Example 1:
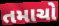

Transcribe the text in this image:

તમાચો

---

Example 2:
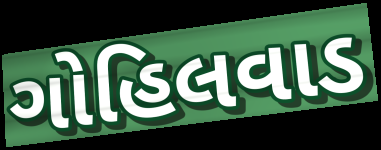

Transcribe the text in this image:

ગોહિલવાડ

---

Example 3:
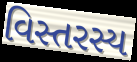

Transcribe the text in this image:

વિસ્તરસ્ય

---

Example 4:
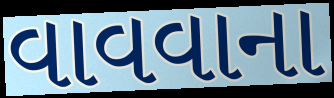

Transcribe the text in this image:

વાવવાના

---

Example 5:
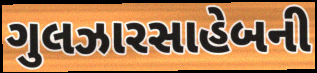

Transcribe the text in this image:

ગુલઝારસાહેબની